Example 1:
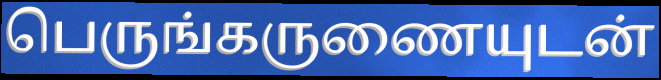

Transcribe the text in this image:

பெருங்கருணையுடன்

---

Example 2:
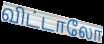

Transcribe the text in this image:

விட்டாலோ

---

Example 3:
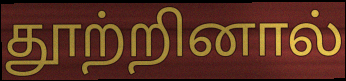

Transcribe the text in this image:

தூற்றினால்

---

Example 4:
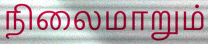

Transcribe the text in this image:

நிலைமாறும்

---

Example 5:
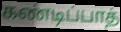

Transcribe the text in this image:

கண்டிப்பாத்